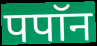
पपॉन